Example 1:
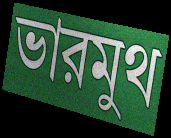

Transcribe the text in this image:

ভারমুথ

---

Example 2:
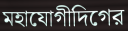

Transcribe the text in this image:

মহাযোগীদিগের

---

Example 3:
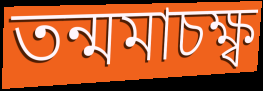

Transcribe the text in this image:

তন্মমাচক্ষ্ব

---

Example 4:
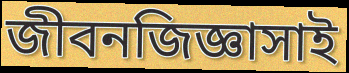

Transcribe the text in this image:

জীবনজিজ্ঞাসাই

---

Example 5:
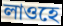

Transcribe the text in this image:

লাওহে